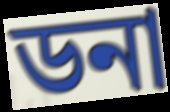
ডনা